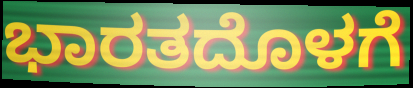
ಭಾರತದೊಳಗೆ